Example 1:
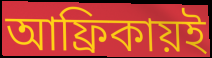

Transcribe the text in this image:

আফ্রিকায়ই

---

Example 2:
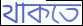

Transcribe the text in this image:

থাকতে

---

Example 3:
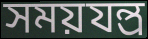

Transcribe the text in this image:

সময়যন্ত্র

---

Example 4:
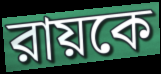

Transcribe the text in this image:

রায়কে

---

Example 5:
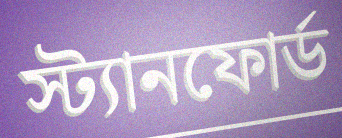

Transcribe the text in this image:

স্ট্যানফোর্ড